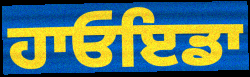
ਹਾਓਇਡਾ